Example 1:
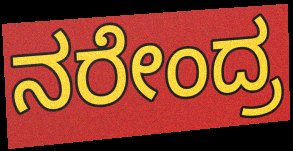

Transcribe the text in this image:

ನರೇಂದ್ರ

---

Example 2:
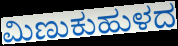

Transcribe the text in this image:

ಮಿಣುಕುಹುಳದ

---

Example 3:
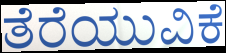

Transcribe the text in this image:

ತೆರೆಯುವಿಕೆ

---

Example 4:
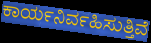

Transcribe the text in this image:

ಕಾರ್ಯನಿರ್ವಹಿಸುತ್ತಿವೆ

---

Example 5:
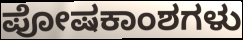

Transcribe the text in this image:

ಪೋಷಕಾಂಶಗಳು